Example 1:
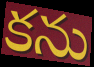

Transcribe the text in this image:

కను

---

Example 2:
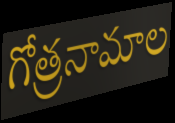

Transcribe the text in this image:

గోత్రనామాల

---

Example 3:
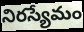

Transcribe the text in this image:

నిరస్యేమం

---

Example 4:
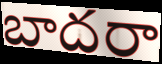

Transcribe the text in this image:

బాదరా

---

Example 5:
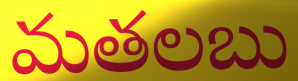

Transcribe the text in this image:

మతలబు